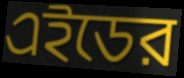
এইডের